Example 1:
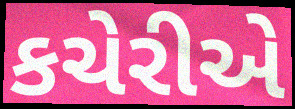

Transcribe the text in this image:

કચેરીએ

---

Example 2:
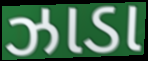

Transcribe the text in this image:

ઝાડા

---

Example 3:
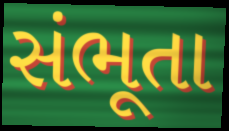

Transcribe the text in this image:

સંભૂતા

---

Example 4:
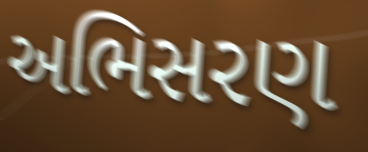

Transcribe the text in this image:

અભિસરણ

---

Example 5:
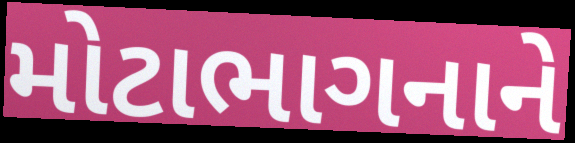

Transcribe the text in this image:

મોટાભાગનાને